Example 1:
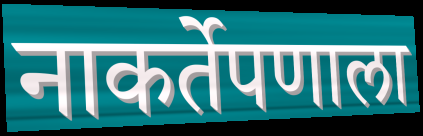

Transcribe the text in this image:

नाकर्तेपणाला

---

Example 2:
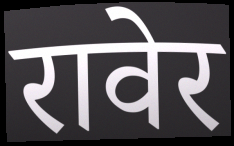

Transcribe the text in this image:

रावेर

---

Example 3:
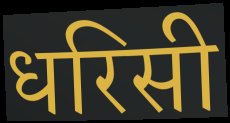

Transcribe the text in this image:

धरिसी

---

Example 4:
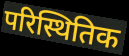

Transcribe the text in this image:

परिस्थितिक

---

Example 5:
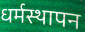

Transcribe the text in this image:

धर्मस्थापन